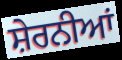
ਸ਼ੇਰਨੀਆਂ